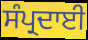
ਸੰਪ੍ਰਦਾਈ